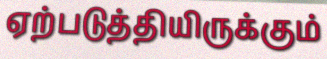
ஏற்படுத்தியிருக்கும்